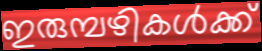
ഇരുമ്പഴികൾക്ക്